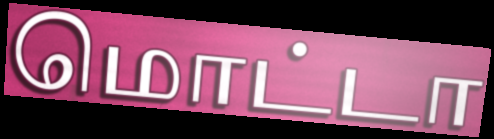
மொட்டா